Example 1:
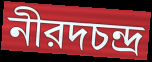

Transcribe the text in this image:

নীরদচন্দ্র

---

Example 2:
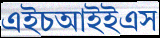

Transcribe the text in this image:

এইচআইইএস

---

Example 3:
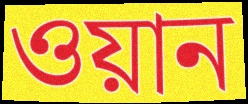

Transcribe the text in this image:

ওয়ান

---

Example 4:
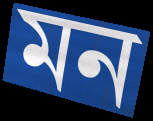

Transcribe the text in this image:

মন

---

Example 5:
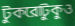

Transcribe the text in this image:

টুকরোটুকুও